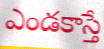
ఎండకాస్తే